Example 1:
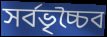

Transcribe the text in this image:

সর্বভৃচ্চৈব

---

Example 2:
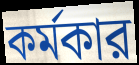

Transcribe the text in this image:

কর্মকার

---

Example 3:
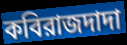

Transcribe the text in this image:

কবিরাজদাদা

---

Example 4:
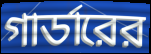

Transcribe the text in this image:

গার্ডারের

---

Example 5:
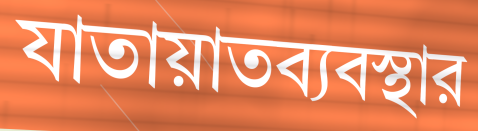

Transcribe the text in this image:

যাতায়াতব্যবস্থার